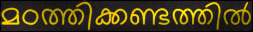
മഠത്തിക്കണ്ടത്തിൽ